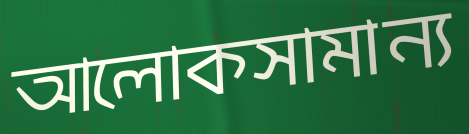
আলোকসামান্য